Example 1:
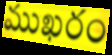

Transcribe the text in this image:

ముఖరం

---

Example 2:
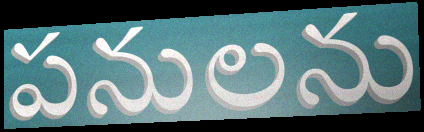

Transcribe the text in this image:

పనులను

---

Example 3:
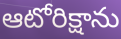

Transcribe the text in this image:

ఆటోరిక్షాను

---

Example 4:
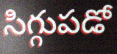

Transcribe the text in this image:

సిగ్గుపడో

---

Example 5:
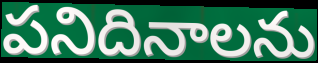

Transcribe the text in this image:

పనిదినాలను